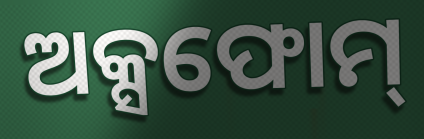
ଅକ୍ସଫୋମ୍